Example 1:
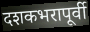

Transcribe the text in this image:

दशकभरापूर्वी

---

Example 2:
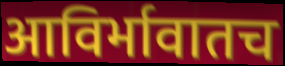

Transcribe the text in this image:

आविर्भावातच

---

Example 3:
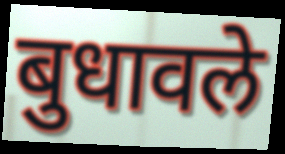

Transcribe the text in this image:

बुधावले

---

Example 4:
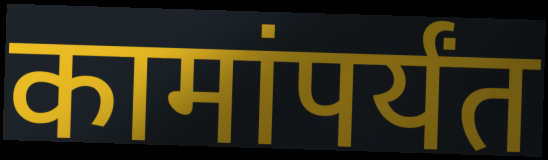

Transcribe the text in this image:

कामांपर्यंत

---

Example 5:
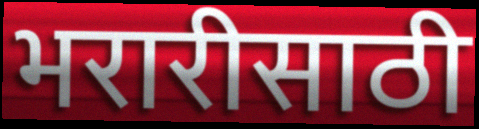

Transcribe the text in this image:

भरारीसाठी